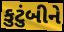
કુટુંબીને